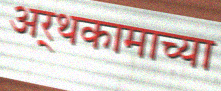
अर्थकामाच्या